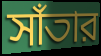
সাঁতার